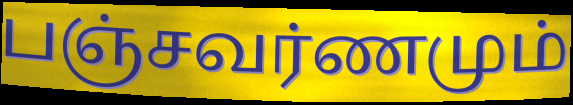
பஞ்சவர்ணமும்